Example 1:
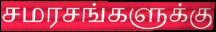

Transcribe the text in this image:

சமரசங்களுக்கு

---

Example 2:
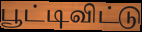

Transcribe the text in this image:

பூட்டிவிட்டு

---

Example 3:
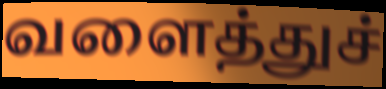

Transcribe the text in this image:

வளைத்துச்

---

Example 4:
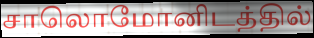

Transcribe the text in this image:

சாலொமோனிடத்தில்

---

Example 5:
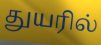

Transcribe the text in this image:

துயரில்